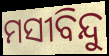
ମସୀବିନ୍ଦୁ